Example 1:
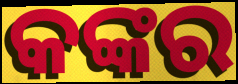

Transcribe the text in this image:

କଙ୍କର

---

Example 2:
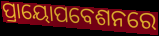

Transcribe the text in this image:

ପ୍ରାୟୋପବେଶନରେ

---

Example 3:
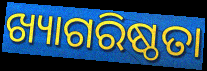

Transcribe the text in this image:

ଖ୍ୟାଗରିଷ୍ଠତା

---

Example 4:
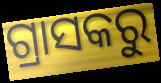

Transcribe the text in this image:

ଗ୍ରାସକରୁ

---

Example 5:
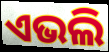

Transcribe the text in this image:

ଏଭଲି